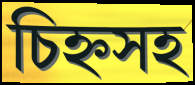
চিহ্নসহ